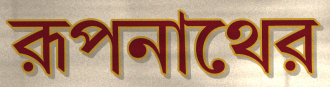
রূপনাথের